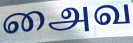
அைவ